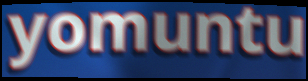
yomuntu